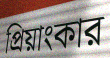
প্রিয়াংকার